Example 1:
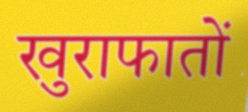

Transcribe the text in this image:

खुराफातों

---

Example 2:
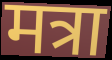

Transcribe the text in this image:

मत्रा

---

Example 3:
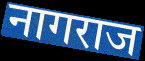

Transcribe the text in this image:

नागराज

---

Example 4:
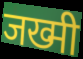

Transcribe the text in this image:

जख्मी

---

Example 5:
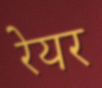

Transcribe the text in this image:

रेयर